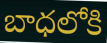
బాధలోకి